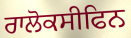
ਰਾਲੋਕਸੀਫਿਨ